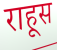
राहूस